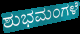
ಶುಭಮಂಗಳೆ